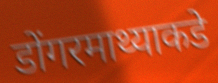
डोंगरमाथ्याकडे